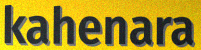
kahenara